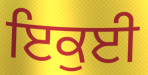
ਇਕੁਈ